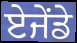
ਏਜੇਂਡੇ